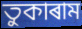
তুকাৰাম